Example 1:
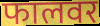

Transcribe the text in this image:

फालवर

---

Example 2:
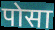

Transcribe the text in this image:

पोसा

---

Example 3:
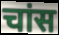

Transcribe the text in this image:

चांस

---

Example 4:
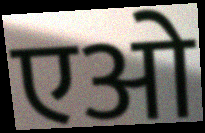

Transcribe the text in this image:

एओ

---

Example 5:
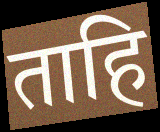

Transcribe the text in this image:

ताहि